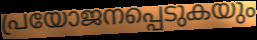
പ്രയോജനപ്പെടുകയും